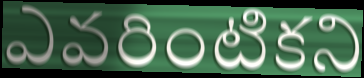
ఎవరింటికని